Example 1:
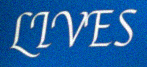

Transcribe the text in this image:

LIVES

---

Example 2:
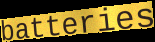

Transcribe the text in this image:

batteries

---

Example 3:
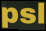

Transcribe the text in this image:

psl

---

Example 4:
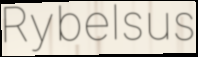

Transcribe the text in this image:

Rybelsus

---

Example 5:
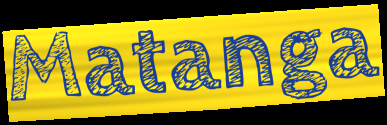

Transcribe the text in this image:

Matanga